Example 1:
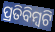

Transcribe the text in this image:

ପ୍ରତିବିମ୍ବଟି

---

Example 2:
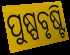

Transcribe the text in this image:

ପୁଷ୍ପବୃଷ୍ଟି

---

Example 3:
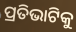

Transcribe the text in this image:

ପ୍ରତିଭାଟିକୁ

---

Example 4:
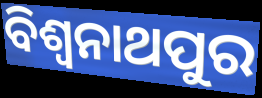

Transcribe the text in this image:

ବିଶ୍ଵନାଥପୁର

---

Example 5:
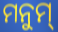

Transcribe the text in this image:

ମନୁମ୍